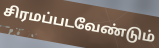
சிரமப்படவேண்டும்